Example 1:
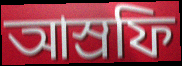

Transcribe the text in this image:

আস্রফি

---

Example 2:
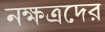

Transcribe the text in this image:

নক্ষত্রদের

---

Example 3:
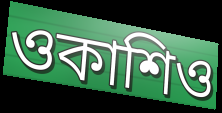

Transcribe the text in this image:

ওকাশিও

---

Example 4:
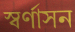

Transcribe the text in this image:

স্বর্ণাসন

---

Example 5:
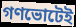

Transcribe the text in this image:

গণভোটেই